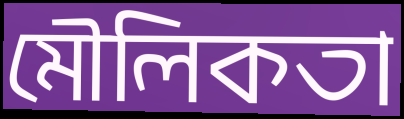
মৌলিকতা